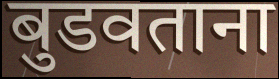
बुडवताना